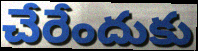
చేరేందుకు